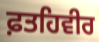
ਫ਼ਤਹਿਵੀਰ